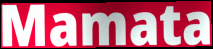
Mamata